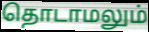
தொடாமலும்